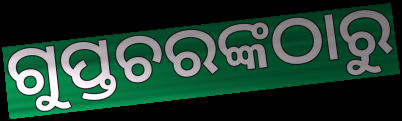
ଗୁପ୍ତଚରଙ୍କଠାରୁ